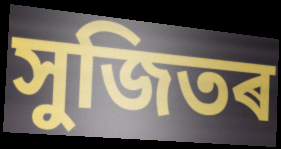
সুজিতৰ